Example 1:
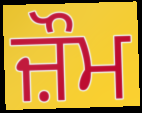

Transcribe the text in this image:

ਜ਼ੌਮ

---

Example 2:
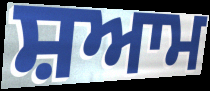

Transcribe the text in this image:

ਸ਼ਆਮ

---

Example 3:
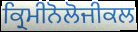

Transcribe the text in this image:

ਕ੍ਰਿਮੀਨੋਲੋਜੀਕਲ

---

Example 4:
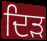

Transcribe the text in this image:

ਦਿੜ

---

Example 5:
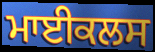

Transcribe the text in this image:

ਮਾਈਕਲਸ